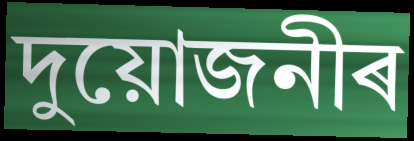
দুয়োজনীৰ